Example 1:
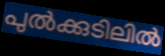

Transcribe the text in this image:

പുൽക്കുടിലിൽ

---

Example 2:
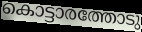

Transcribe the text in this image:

കൊട്ടാരത്തോടു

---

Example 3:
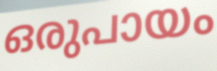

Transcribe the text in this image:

ഒരുപായം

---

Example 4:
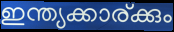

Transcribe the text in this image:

ഇന്ത്യക്കാര്ക്കും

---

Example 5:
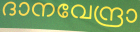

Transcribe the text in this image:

ദാനവേന്ദ്രാ